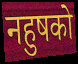
नहुषको